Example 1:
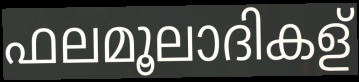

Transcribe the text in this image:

ഫലമൂലാദികള്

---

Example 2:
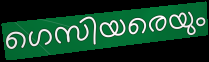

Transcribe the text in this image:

ഗെസിയരെയും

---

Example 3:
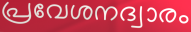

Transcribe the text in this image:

പ്രവേശനദ്വാരം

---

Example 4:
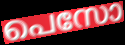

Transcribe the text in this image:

പെസോ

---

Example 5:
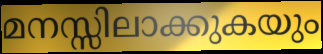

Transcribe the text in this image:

മനസ്സിലാക്കുകയും